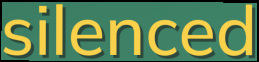
silenced